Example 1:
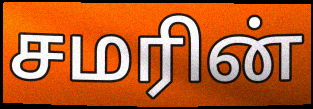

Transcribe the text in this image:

சமரின்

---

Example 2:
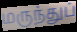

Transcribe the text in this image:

மருந்துப்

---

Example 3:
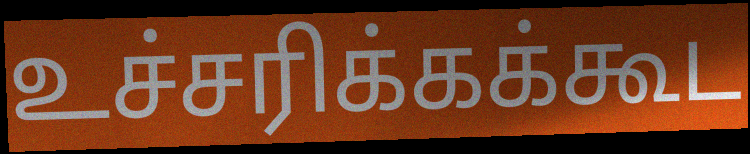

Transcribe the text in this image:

உச்சரிக்கக்கூட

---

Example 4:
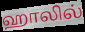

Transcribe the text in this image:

ஹாலில்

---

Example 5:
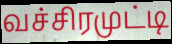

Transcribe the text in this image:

வச்சிரமுட்டி